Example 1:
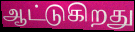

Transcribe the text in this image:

ஆட்டுகிறது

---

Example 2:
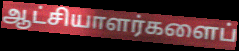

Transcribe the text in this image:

ஆட்சியாளர்களைப்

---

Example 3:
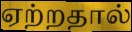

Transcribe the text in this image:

ஏற்றதால்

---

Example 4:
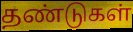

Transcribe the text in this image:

தண்டுகள்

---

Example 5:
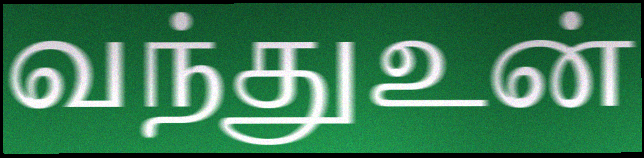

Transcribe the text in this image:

வந்துஉன்